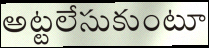
అట్టలేసుకుంటూ